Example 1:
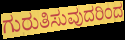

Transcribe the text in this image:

ಗುರುತಿಸುವುದರಿಂದ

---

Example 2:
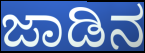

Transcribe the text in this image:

ಜಾಡಿನ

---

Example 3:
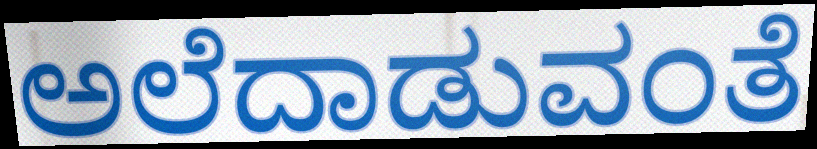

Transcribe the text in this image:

ಅಲೆದಾಡುವಂತೆ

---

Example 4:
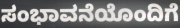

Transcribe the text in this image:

ಸಂಭಾವನೆಯೊಂದಿಗೆ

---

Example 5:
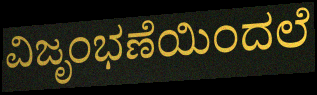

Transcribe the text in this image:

ವಿಜೃಂಭಣೆಯಿಂದಲೆ